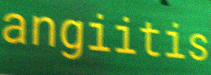
angiitis